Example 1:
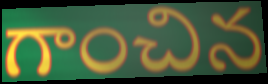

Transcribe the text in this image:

గాంచిన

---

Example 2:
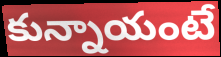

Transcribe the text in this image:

కున్నాయంటే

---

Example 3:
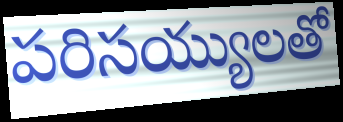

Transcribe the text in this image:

పరిసయ్యులతో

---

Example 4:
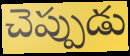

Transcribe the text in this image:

చెప్పుడు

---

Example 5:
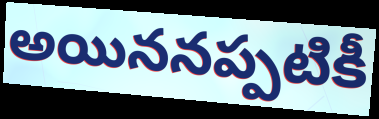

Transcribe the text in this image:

అయిననప్పటికీ